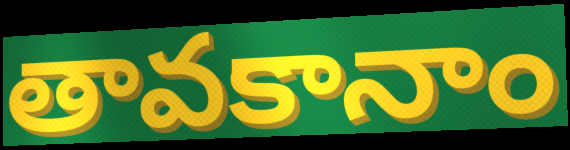
తావకానాం